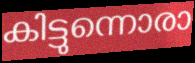
കിട്ടുന്നൊരാ